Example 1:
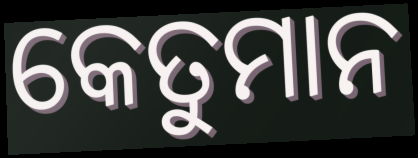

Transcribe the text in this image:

କେତୁମାନ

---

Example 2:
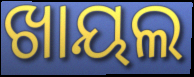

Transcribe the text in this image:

ଖାୟଲ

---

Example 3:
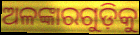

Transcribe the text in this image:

ଅଳଙ୍କାରଗୁଡ଼ିକୁ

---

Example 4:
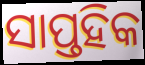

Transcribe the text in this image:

ସାପ୍ତହିକ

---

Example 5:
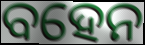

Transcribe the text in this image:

ବହେନ